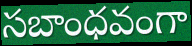
సబాంధవంగా